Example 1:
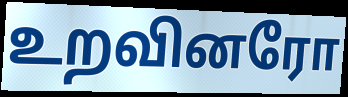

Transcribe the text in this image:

உறவினரோ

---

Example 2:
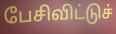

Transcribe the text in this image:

பேசிவிட்டுச்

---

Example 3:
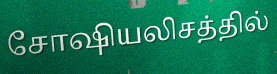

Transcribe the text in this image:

சோஷியலிசத்தில்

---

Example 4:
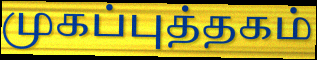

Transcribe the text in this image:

முகப்புத்தகம்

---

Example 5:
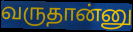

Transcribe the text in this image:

வருதான்னு